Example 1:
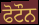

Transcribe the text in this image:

ਫੋਟੌਨ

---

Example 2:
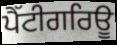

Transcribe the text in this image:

ਪੈੱਟੀਗਰਿਊ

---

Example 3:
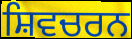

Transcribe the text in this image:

ਸ਼ਿਵਚਰਨ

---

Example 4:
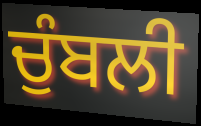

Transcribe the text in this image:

ਚੁੰਬਲੀ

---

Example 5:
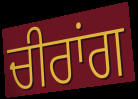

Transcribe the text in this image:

ਚੀਰਾਂਗ